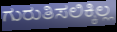
ಗುರುತಿಸಲಿಕ್ಕಿಲ್ಲ